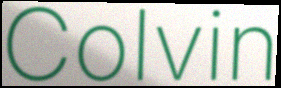
Colvin